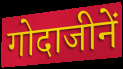
गोदाजीनें